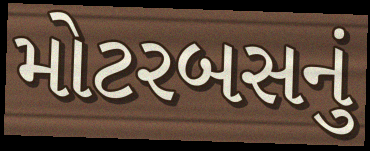
મોટરબસનું